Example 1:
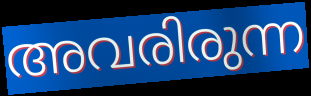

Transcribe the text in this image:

അവരിരുന്ന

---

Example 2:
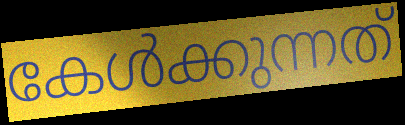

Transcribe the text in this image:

കേൾക്കുന്നത്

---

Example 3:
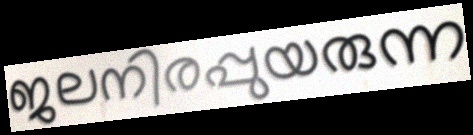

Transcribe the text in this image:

ജലനിരപ്പുയരുന്ന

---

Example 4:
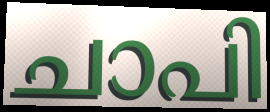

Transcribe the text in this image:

ചാപി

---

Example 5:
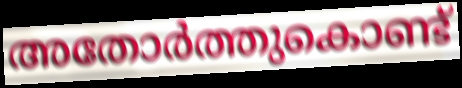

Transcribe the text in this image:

അതോർത്തുകൊണ്ട്